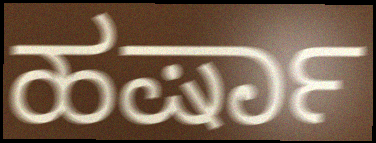
ಹರ್ಷಾ